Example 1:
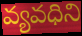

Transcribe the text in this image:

వ్యవధిని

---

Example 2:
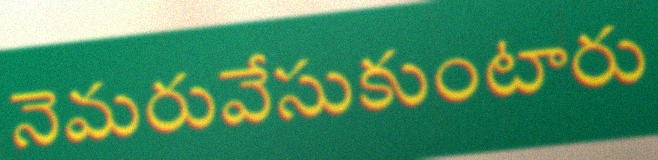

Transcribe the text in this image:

నెమరువేసుకుంటారు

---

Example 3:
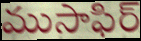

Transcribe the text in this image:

ముసాఫిర్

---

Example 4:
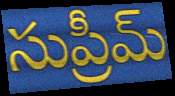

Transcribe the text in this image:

సుప్రీమ్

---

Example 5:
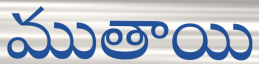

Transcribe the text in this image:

ముతాయి